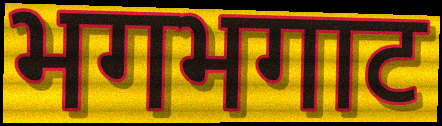
भगभगाट